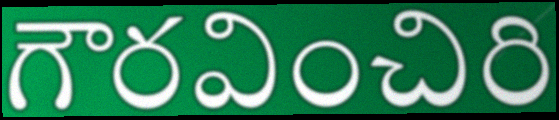
గౌరవించిరి